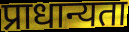
प्राधान्यता